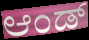
ಆಂಡ್